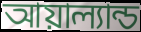
আয়াল্যান্ড